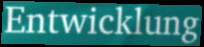
Entwicklung